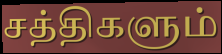
சத்திகளும்